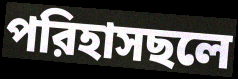
পরিহাসছলে